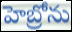
హెబ్రోను